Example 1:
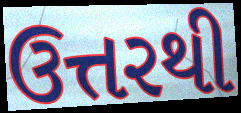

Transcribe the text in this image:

ઉત્તરથી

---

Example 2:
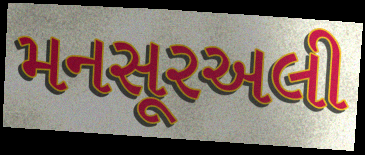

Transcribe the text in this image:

મનસૂરઅલી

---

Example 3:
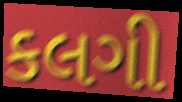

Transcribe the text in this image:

કલગી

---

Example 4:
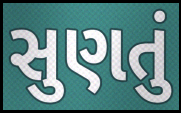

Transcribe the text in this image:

સુણતું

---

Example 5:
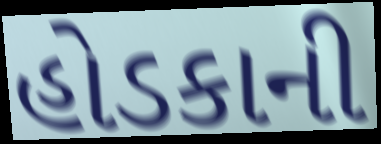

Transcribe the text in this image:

હોડકાની